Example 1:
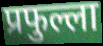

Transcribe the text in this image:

प्रफुल्ला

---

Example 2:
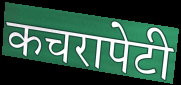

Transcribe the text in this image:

कचरापेटी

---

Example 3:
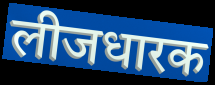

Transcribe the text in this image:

लीजधारक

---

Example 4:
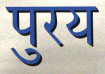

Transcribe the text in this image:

पुरय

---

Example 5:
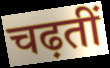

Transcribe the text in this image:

चढ़तीं